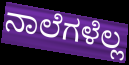
ನಾಲೆಗಳೆಲ್ಲ